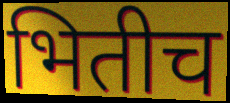
भितीच